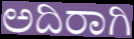
ಅದಿರಾಗಿ